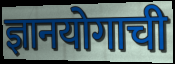
ज्ञानयोगाची